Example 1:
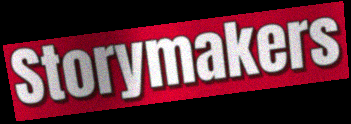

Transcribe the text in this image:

Storymakers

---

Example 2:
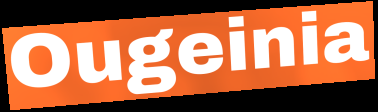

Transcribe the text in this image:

Ougeinia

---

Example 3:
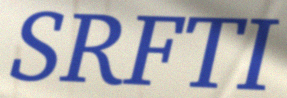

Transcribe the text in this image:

SRFTI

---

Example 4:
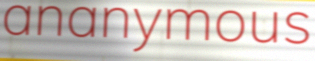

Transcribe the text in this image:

ananymous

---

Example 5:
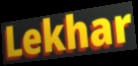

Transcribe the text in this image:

Lekhar